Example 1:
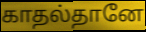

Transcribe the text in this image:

காதல்தானே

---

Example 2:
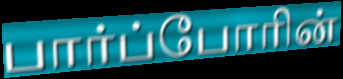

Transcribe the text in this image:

பார்ப்போரின்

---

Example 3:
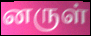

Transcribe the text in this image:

னருள்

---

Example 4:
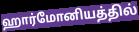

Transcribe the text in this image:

ஹார்மோனியத்தில்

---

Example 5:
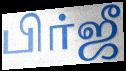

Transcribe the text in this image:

பிர்ஜீ